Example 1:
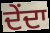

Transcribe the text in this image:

ਦੇਂਦਾ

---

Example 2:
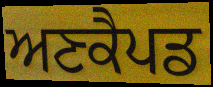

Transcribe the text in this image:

ਅਣਕੈਪਡ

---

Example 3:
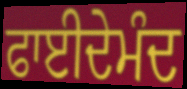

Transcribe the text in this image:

ਫਾਈਦੇਮੰਦ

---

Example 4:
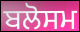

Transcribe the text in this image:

ਬਲੋਸਮ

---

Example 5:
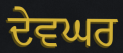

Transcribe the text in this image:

ਦੇਵਘਰ